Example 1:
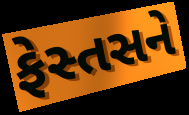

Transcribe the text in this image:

ફેસ્તસને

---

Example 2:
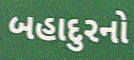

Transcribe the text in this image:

બહાદુરનો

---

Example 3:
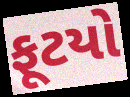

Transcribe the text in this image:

ફૂટયો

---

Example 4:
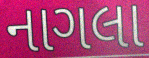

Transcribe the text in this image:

નાગલા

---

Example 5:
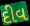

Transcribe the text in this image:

દીવ